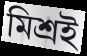
মিশ্ৰই